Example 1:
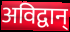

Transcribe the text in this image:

अविद्वान्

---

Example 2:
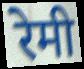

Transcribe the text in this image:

रेमी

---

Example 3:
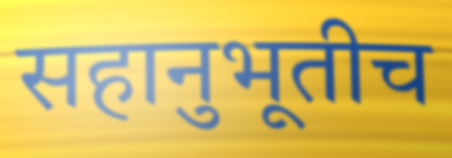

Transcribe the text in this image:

सहानुभूतीच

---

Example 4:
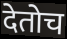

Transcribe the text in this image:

देतोच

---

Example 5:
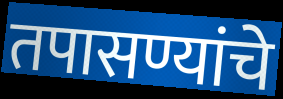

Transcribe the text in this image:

तपासण्यांचे